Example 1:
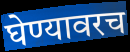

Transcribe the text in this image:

घेण्यावरच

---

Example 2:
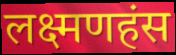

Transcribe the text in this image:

लक्ष्मणहंस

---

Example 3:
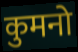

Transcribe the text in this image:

कुमनो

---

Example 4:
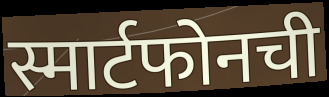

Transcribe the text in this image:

स्मार्टफोनची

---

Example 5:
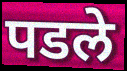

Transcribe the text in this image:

पडले